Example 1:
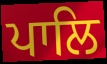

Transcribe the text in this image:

ਪਾਲਿ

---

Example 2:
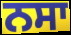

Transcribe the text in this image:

ਨਸਾ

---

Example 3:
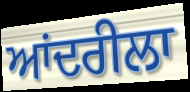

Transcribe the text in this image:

ਆਂਦਰੀਲਾ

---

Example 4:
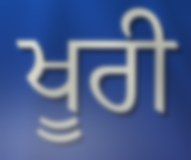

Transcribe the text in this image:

ਖੂਰੀ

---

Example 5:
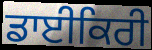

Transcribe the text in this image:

ਡਾਈਕਿਰੀ